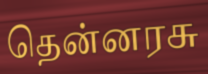
தென்னரசு